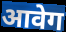
आवेग